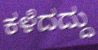
ಕಳೆದದ್ದು